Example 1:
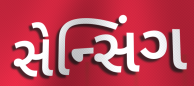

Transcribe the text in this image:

સેન્સિંગ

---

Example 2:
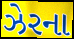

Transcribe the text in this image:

ઝેરના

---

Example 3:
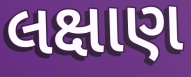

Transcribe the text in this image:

લક્ષાણ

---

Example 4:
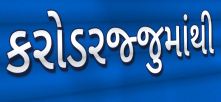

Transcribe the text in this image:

કરોડરજ્જુમાંથી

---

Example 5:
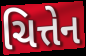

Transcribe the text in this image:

ચિત્તેન